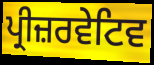
ਪ੍ਰੀਜ਼ਰਵੇਟਿਵ